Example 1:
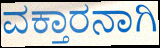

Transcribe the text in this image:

ವಕ್ತಾರನಾಗಿ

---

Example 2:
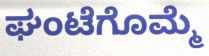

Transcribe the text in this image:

ಘಂಟೆಗೊಮ್ಮೆ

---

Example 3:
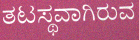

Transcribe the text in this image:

ತಟಸ್ಥವಾಗಿರುವ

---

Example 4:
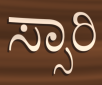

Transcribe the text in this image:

ಸ್ಸಾರಿ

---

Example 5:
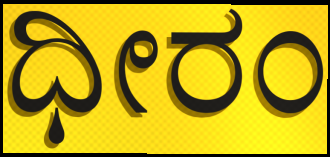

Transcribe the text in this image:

ಧೀರಂ